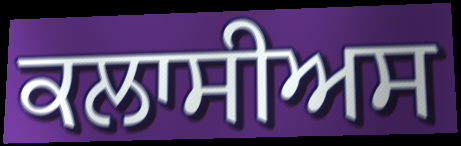
ਕਲਾਸੀਅਸ